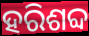
ହରିଶବ୍ଦ